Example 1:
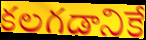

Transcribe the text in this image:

కలగడానికే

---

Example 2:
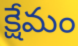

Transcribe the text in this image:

క్షేమం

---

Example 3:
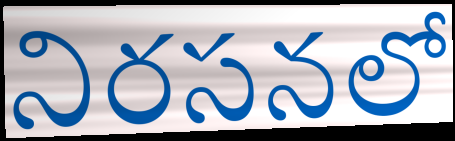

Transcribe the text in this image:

నిరసనలో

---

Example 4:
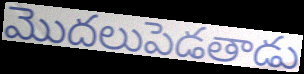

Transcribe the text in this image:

మొదలుపెడతాడు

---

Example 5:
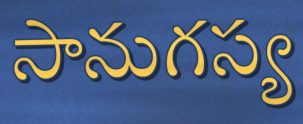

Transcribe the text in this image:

సానుగస్య